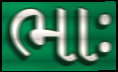
ભાઃ